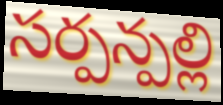
సర్పన్పల్లి